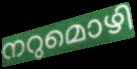
നറുമൊഴി